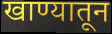
खाण्यातून